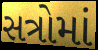
સત્રોમાં